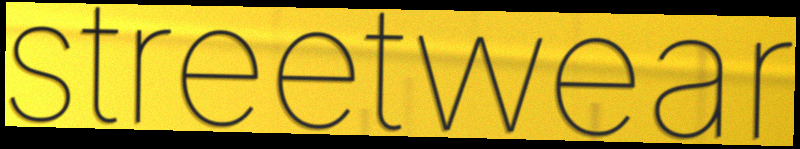
streetwear